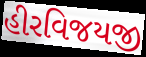
હીરવિજયજી